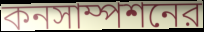
কনসাম্পশনের